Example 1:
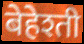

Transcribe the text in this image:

बेहेश्ती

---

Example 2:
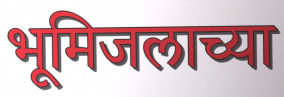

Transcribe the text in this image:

भूमिजलाच्या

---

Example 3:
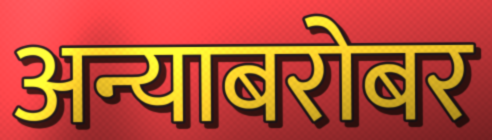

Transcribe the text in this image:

अन्याबरोबर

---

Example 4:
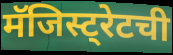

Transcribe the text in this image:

मॅजिस्ट्रेटची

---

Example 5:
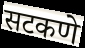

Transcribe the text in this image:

सटकणे